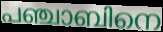
പഞ്ചാബിനെ